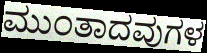
ಮುಂತಾದವುಗಳ